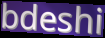
bdeshi